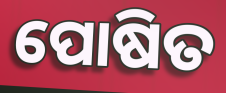
ପୋଷିତ